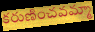
కరుణించవమ్మా